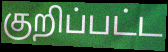
குறிப்பட்ட